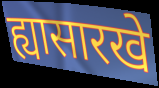
ह्यासारखे